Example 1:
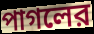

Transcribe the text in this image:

পাগলের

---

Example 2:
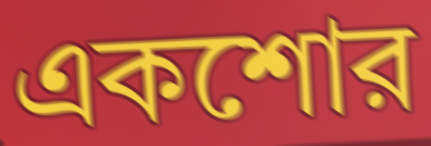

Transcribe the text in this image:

একশোর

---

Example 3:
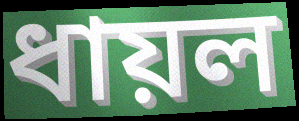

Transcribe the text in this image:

ধায়ল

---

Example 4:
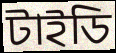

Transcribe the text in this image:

টাইডি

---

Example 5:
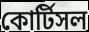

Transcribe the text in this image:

কোর্টিসল